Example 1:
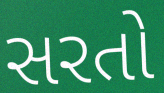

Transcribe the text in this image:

સરતો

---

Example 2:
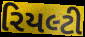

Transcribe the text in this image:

રિયલ્ટી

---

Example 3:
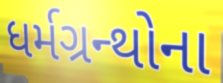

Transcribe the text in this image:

ધર્મગ્રન્થોના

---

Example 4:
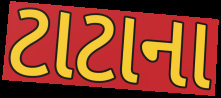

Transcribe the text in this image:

ટાટાના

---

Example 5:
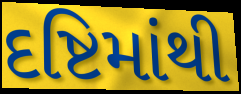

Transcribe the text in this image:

દષ્ટિમાંથી